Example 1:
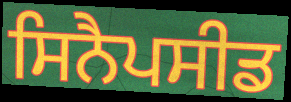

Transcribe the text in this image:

ਸਿਨੈਪਸੀਡ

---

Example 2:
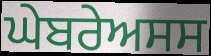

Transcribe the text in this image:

ਘੇਬਰੇਅਸਸ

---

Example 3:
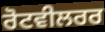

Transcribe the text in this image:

ਰੋਟਵੀਲਰਰ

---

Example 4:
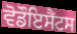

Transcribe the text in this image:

ਵੋਡੌਇਸੈਂਟਸ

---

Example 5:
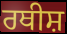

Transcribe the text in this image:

ਰਥੀਸ਼